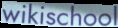
wikischool